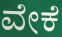
ವೇಕೆ